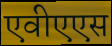
एवीएएस